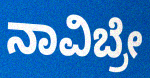
ನಾವಿಬ್ರೇ